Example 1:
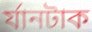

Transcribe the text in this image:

র্যানটাক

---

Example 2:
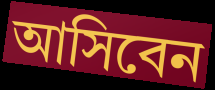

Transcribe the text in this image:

আসিবেন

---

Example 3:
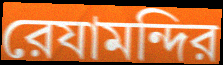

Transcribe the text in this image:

রেযামন্দির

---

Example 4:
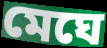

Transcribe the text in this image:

মেঘে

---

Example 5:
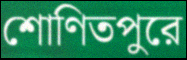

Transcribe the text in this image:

শোণিতপুরে